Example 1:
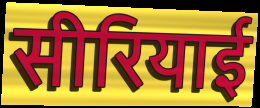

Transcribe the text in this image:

सीरियाई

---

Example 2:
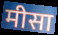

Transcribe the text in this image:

मीसा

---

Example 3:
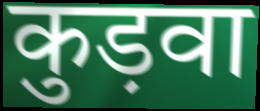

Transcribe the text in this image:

कुड़वा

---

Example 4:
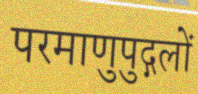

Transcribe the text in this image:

परमाणुपुद्गलों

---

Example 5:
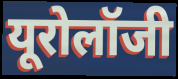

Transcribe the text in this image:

यूरोलॉजी